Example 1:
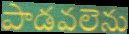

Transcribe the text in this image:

పాడవలెను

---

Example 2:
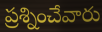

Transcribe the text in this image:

ప్రశ్నించేవారు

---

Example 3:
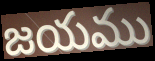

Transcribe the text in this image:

జయము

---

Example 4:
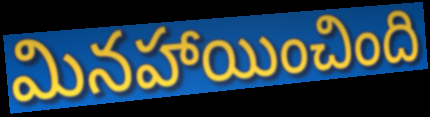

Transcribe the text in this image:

మినహాయించింది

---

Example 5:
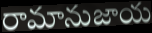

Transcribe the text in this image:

రామానుజాయ